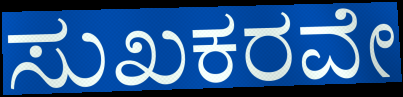
ಸುಖಕರವೇ